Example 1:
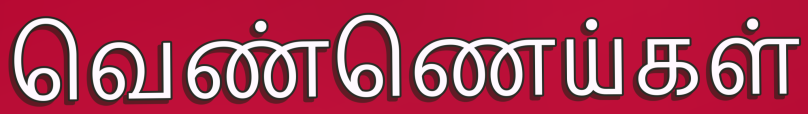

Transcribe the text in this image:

வெண்ணெய்கள்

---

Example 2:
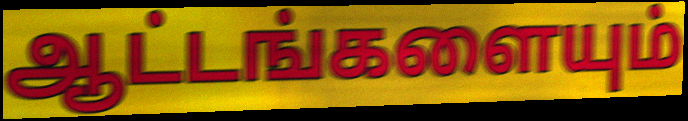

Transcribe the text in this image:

ஆட்டங்களையும்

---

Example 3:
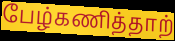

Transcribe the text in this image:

பேழ்கணித்தாற்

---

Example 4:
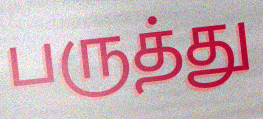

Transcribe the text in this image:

பருத்து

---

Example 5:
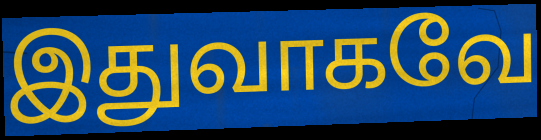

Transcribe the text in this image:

இதுவாகவே